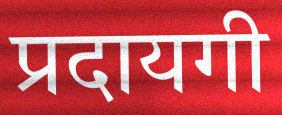
प्रदायगी